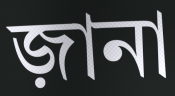
জ়ানা